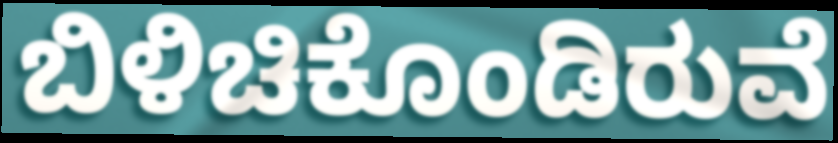
ಬಿಳಿಚಿಕೊಂಡಿರುವೆ